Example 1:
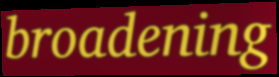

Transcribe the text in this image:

broadening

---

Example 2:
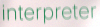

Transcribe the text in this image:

interpreter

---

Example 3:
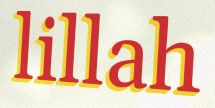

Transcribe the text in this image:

lillah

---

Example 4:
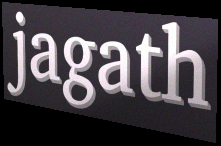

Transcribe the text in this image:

jagath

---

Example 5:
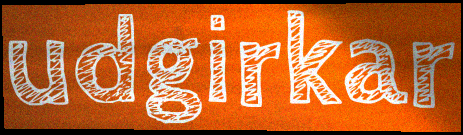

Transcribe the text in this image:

udgirkar